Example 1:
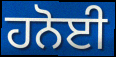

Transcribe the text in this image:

ਹਨੋਈ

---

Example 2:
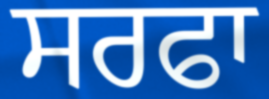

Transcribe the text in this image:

ਸਰਫਾ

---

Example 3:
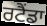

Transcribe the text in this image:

ਰਟੈਂਡਾ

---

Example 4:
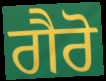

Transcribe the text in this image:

ਗੈਰੋ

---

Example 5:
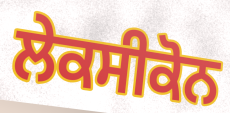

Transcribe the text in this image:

ਲੇਕਸੀਕੋਨ